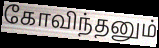
கோவிந்தனும்